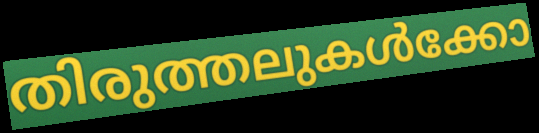
തിരുത്തലുകൾക്കോ